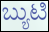
ಬ್ಯುಟಿ